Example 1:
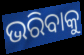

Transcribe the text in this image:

ଭରିବାକୁ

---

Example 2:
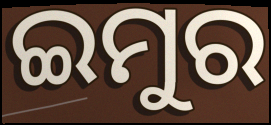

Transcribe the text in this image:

ଇମୁର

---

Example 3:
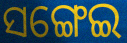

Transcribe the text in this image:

ସଙ୍ଗେଇ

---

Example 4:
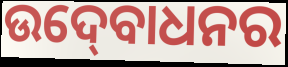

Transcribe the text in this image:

ଉଦ୍‍ବୋଧନର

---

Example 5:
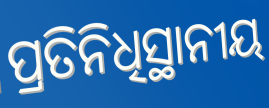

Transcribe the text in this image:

ପ୍ରତିନିଧିସ୍ଥାନୀୟ